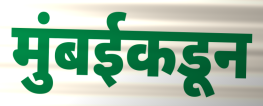
मुंबईकडून